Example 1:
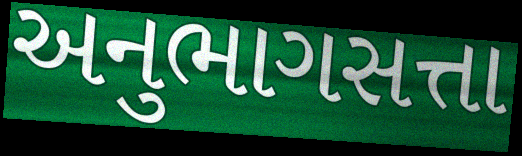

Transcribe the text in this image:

અનુભાગસત્તા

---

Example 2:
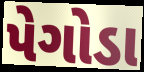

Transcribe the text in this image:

પેગોડા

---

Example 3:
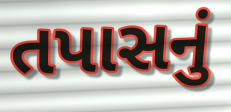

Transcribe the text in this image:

તપાસનું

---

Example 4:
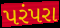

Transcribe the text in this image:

પરંપરા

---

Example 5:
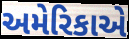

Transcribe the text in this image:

અમેરિકાએ